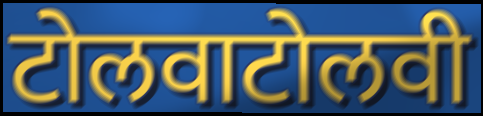
टोलवाटोलवी